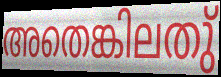
അതെങ്കിലതു്